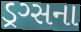
ડ્રગ્સના